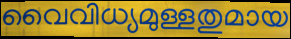
വൈവിധ്യമുള്ളതുമായ